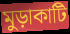
মুড়াকাটি